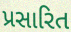
પ્રસારિત